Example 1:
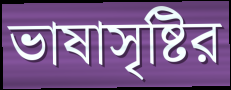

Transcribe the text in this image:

ভাষাসৃষ্টির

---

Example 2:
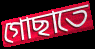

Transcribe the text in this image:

গোছাতে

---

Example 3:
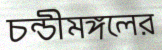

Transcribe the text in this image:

চন্ডীমঙ্গলের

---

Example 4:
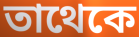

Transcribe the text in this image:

তাথেকে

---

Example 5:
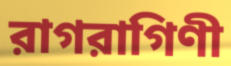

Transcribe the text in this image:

রাগরাগিণী